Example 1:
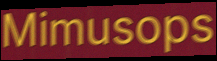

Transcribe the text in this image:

Mimusops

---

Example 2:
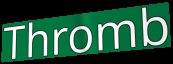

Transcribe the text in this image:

Thromb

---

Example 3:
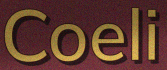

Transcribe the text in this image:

Coeli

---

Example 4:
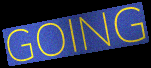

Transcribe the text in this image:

GOING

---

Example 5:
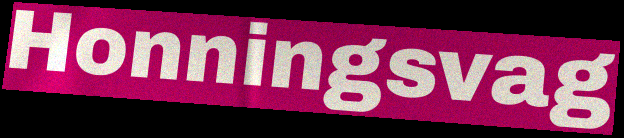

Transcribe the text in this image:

Honningsvag